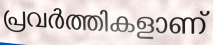
പ്രവർത്തികളാണ്